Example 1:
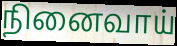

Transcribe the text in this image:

நினைவாய்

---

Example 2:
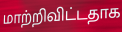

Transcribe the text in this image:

மாற்றிவிட்டதாக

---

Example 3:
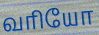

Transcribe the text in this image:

வரியோ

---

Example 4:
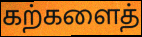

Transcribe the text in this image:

கற்களைத்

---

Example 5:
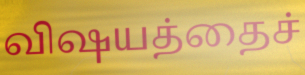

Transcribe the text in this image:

விஷயத்தைச்